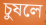
চুষলে